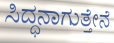
ಸಿದ್ಧನಾಗುತ್ತೇನೆ